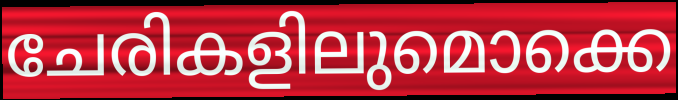
ചേരികളിലുമൊക്കെ